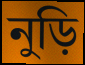
নুড়ি